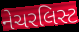
નેચરલિસ્ટ